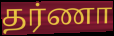
தர்ணா